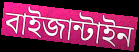
বাইজান্টাইন